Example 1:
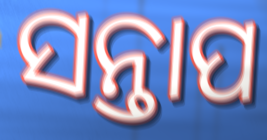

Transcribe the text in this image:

ସନ୍ତାପ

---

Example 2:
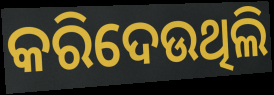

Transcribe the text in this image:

କରିଦେଉଥିଲି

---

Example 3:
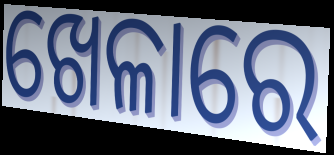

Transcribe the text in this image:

ଖେଳାରେ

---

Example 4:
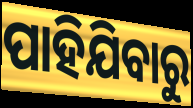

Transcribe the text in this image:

ପାହିଯିବାରୁ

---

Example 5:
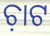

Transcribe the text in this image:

ଚ଼ାଟ